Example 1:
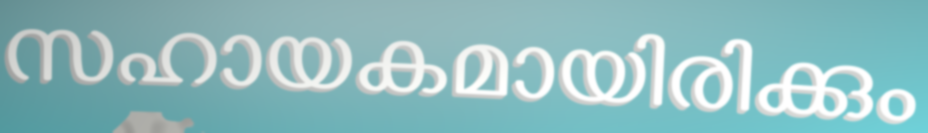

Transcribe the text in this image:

സഹായകമായിരിക്കും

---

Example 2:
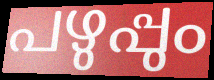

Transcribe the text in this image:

പഴുപ്പും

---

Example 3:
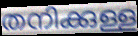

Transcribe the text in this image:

തനിക്കുള്ള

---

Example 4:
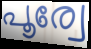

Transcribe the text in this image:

പൂര്വേ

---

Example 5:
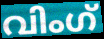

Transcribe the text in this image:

വിംഗ്